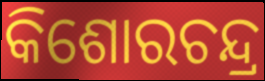
କିଶୋରଚନ୍ଦ୍ର